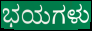
ಭಯಗಳು